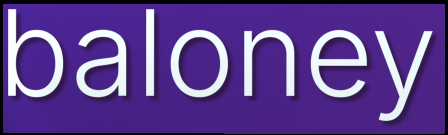
baloney